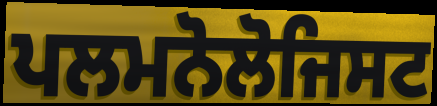
ਪਲਮਨੋਲੋਜਿਸਟ